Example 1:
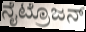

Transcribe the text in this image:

ನೈಟ್ರೊಜನ್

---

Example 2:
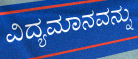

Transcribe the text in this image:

ವಿದ್ಯಮಾನವನ್ನು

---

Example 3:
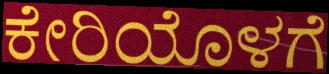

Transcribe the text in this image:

ಕೇರಿಯೊಳಗೆ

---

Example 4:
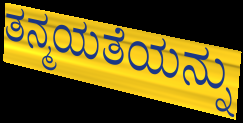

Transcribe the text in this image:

ತನ್ಮಯತೆಯನ್ನು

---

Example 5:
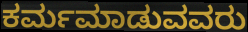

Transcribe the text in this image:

ಕರ್ಮಮಾಡುವವರು